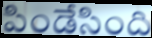
పిండేసింది